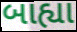
બાહ્યા